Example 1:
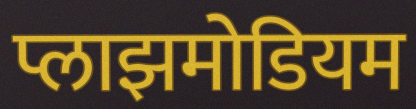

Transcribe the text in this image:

प्लाझमोडियम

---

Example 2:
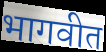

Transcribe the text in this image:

भागवीत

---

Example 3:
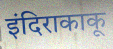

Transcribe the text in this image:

इंदिराकाकू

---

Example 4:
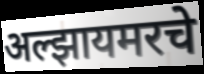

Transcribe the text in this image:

अल्झायमरचे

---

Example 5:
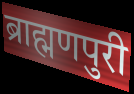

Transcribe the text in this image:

ब्राह्मणपुरी